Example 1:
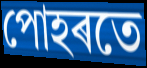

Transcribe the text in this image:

পোহৰতে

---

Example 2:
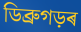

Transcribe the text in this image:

ডিব্ৰুগড়ৰ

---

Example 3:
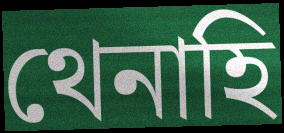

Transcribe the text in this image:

থেনাহি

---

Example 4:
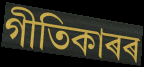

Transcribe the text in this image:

গীতিকাৰৰ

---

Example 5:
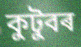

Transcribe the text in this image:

কুটুবৰ